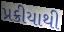
પ્રક્રીયાથી